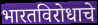
भारतविरोधाचे